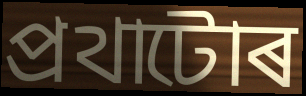
প্ৰথাটোৰ